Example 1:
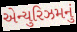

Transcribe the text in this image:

એન્યુરિઝમનું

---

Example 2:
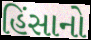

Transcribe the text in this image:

હિંસાનો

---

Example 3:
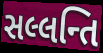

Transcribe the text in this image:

સલ્લન્તિ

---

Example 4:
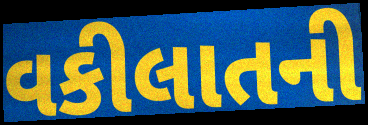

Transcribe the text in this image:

વકીલાતની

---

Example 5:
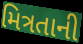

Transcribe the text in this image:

મિત્રતાની